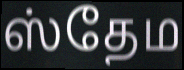
ஸ்தேம